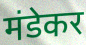
मंडेकर